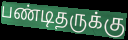
பண்டிதருக்கு